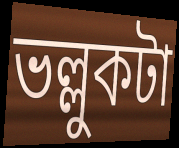
ভল্লুকটা